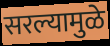
सरल्यामुळे